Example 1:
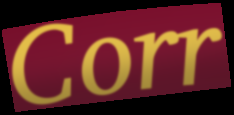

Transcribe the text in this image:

Corr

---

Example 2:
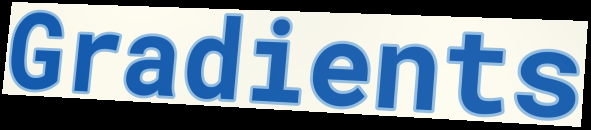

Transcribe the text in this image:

Gradients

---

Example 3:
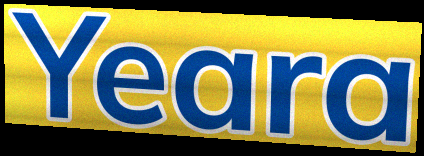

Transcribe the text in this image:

Yeara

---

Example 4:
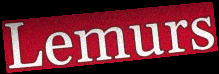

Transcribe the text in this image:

Lemurs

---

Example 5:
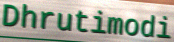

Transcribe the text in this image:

Dhrutimodi